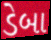
ડેબા